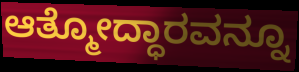
ಆತ್ಮೋದ್ಧಾರವನ್ನೂ